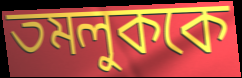
তমলুককে